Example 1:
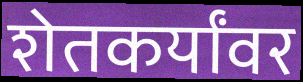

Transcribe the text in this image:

शेतकर्यांवर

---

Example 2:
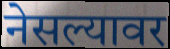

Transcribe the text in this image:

नेसल्यावर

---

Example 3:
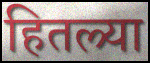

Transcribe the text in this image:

हितल्या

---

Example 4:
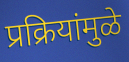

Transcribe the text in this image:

प्रक्रियांमुळे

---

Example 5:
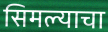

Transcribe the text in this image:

सिमल्याचा